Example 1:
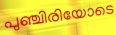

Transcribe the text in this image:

പുഞ്ചിരിയോടെ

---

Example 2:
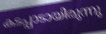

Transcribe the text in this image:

കടപ്പാടായിരുന്നു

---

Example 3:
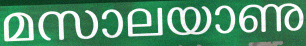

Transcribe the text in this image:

മസാലയാണു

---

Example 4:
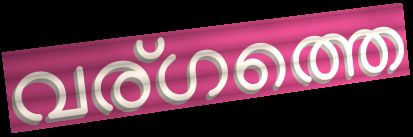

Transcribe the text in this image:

വര്ഗത്തെ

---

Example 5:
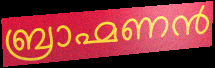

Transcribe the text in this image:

ബ്രാഹ്മണൻ